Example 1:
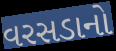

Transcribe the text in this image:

વરસડાનો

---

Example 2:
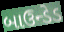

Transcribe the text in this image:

બાઉન્ડેડ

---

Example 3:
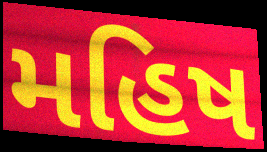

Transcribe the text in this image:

મહિષ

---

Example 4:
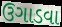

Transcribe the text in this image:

ઉગાડવા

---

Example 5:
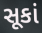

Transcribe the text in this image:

સૂકાં